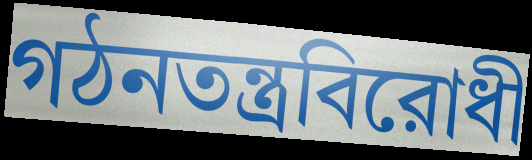
গঠনতন্ত্রবিরোধী